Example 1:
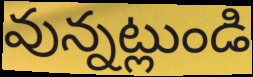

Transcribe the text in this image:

వున్నట్లుండి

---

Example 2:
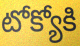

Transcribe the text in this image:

టోక్యోకి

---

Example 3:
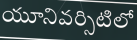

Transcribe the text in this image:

యూనివర్సిటిలో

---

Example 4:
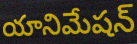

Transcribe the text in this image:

యానిమేషన్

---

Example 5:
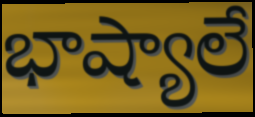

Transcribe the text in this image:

భాష్యాలే